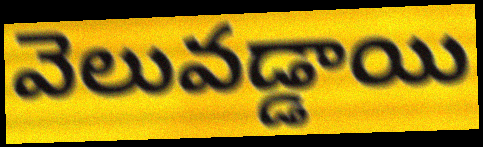
వెలువడ్డాయి